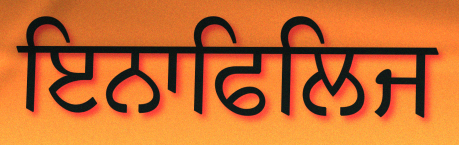
ਇਨਾਫਿਲਿਜ